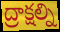
ద్రాక్షల్ని